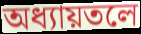
অধ্যায়তলে